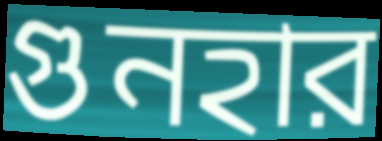
গুনহার